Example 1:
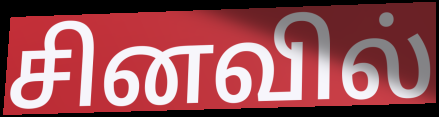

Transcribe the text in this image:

சினவில்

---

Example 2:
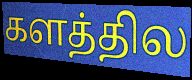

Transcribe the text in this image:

களத்தில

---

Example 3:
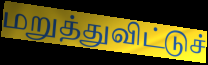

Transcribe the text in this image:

மறுத்துவிட்டுச்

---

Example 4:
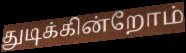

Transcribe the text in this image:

துடிக்கின்றோம்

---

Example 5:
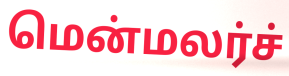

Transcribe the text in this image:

மென்மலர்ச்